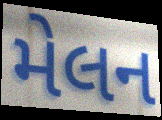
મેલન